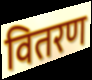
वितरण